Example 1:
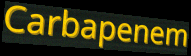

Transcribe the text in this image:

Carbapenem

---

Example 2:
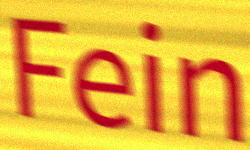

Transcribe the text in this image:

Fein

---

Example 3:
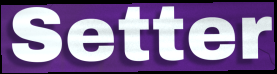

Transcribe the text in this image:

Setter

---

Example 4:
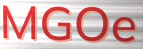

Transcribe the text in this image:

MGOe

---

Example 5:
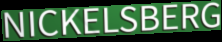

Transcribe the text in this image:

NICKELSBERG